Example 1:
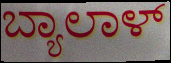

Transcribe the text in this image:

ಬ್ಯಾಲಾಳ್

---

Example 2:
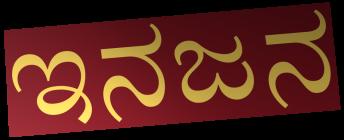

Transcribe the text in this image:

ಇನಜನ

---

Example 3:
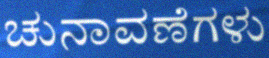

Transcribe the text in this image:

ಚುನಾವಣೆಗಳು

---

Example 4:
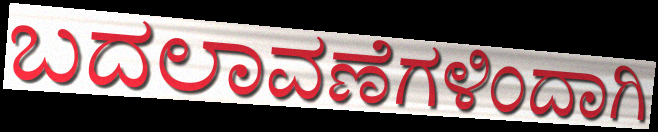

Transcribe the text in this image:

ಬದಲಾವಣೆಗಳಿಂದಾಗಿ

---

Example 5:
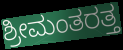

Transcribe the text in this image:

ಶ್ರೀಮಂತರತ್ತ